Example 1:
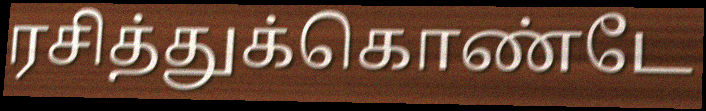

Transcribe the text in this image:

ரசித்துக்கொண்டே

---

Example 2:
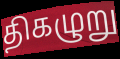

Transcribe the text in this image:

திகழுறு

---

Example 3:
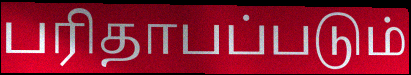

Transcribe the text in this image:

பரிதாபப்படும்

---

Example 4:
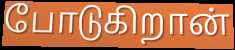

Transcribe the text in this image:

போடுகிறான்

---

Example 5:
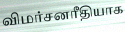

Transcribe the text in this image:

விமர்சனரீதியாக